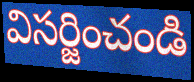
విసర్జించండి